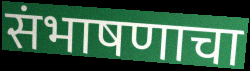
संभाषणाचा